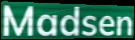
Madsen